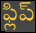
ఫ్లిప్